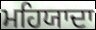
ਮਹਿਯਾਦਾ